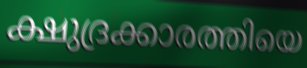
ക്ഷുദ്രക്കാരത്തിയെ